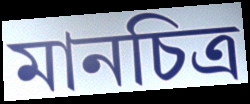
মানচিত্র